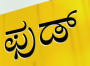
ಫುಡ್